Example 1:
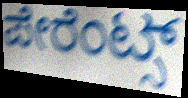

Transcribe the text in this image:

ಪೇರೆಂಟ್ಸ್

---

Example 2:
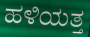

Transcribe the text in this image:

ಹಳಿಯತ್ತ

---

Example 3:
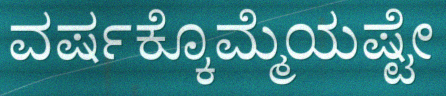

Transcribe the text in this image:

ವರ್ಷಕ್ಕೊಮ್ಮೆಯಷ್ಟೇ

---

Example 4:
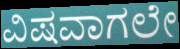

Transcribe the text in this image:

ವಿಷವಾಗಲೇ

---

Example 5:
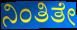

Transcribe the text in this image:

ನಿಂತಿತೇ